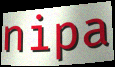
nipa